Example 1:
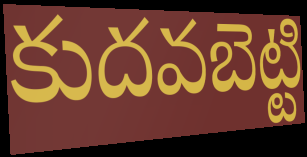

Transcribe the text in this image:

కుదవబెట్టి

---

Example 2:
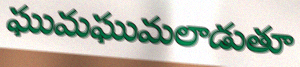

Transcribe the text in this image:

ఘుమఘుమలాడుతూ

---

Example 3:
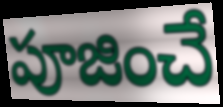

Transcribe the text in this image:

పూజించే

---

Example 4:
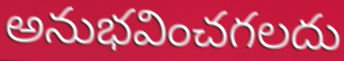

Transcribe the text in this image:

అనుభవించగలదు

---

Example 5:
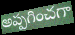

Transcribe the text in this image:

అప్పగించగా